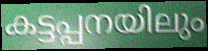
കട്ടപ്പനയിലും